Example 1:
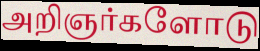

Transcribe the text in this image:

அறிஞர்களோடு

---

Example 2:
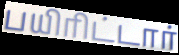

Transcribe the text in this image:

பயிரிட்டார்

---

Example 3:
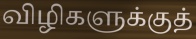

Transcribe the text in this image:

விழிகளுக்குத்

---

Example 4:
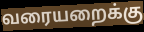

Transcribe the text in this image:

வரையறைக்கு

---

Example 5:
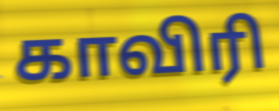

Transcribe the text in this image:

காவிரி